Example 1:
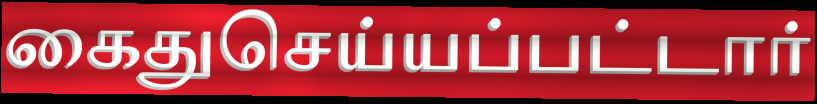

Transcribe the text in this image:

கைதுசெய்யப்பட்டார்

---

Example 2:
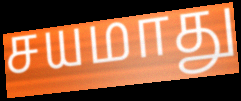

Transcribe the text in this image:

சயமாது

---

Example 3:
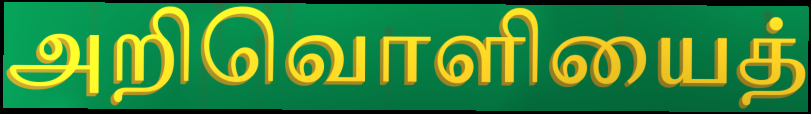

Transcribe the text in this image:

அறிவொளியைத்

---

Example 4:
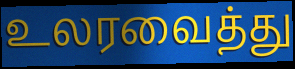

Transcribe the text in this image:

உலரவைத்து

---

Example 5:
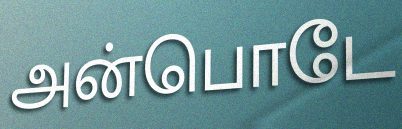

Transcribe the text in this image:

அன்பொடே